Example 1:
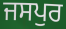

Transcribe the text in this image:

ਜਸਪੁਰ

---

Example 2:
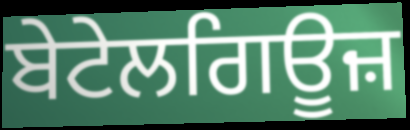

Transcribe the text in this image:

ਬੇਟੇਲਗਿਊਜ਼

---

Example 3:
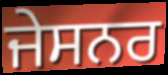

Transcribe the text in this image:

ਜੇਸਨਰ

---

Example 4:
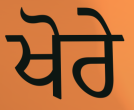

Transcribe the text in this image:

ਖੋਰੇ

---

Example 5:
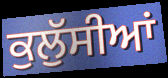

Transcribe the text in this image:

ਕੁਲੁੱਸੀਆਂ